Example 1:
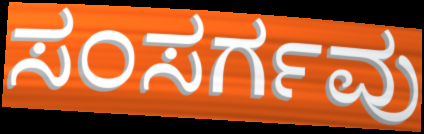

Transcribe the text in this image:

ಸಂಸರ್ಗವು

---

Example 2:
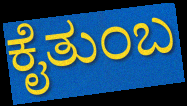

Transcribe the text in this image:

ಕೈತುಂಬ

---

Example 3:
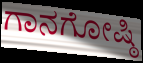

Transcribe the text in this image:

ಗಾನಗೋಷ್ಠಿ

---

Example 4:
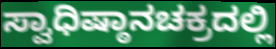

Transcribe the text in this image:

ಸ್ವಾಧಿಷ್ಠಾನಚಕ್ರದಲ್ಲಿ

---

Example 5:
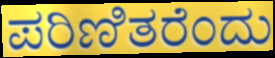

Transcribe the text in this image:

ಪರಿಣಿತರೆಂದು